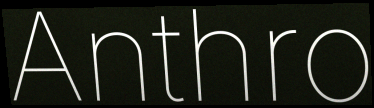
Anthro